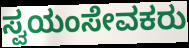
ಸ್ವಯಂಸೇವಕರು